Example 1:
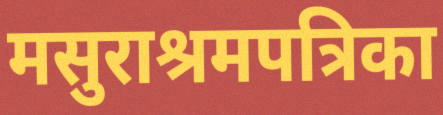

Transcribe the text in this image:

मसुराश्रमपत्रिका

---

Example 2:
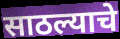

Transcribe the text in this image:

साठल्याचे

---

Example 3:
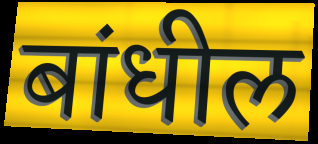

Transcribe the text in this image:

बांधील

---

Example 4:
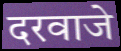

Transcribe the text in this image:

दरवाजे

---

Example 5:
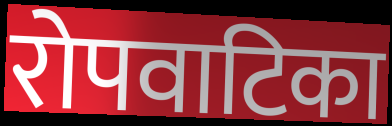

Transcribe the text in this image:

रोपवाटिका